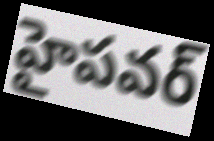
హైపవర్